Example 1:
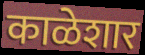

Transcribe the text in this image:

काळेशार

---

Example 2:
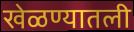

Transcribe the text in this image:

खेळण्यातली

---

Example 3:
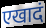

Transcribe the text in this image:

एखादं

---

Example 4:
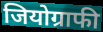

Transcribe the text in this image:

जियोग्राफी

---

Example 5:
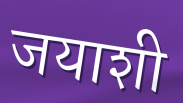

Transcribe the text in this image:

जयाशी